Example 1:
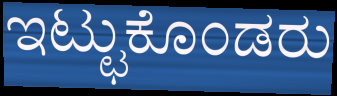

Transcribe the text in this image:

ಇಟ್ಟುಕೊಂಡರು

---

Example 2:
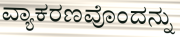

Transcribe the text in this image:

ವ್ಯಾಕರಣವೊಂದನ್ನು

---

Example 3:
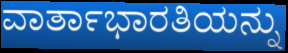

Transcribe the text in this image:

ವಾರ್ತಾಭಾರತಿಯನ್ನು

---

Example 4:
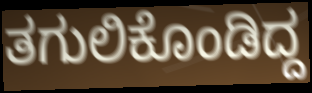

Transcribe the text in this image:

ತಗುಲಿಕೊಂಡಿದ್ದ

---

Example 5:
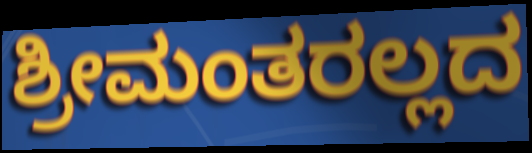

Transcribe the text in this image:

ಶ್ರೀಮಂತರಲ್ಲದ